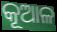
କୂଆଳ